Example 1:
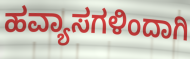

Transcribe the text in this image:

ಹವ್ಯಾಸಗಳಿಂದಾಗಿ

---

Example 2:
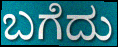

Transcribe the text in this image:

ಬಗೆದು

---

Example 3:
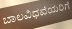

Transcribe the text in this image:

ಬಾಲವಿಧವೆಯರಿಗೆ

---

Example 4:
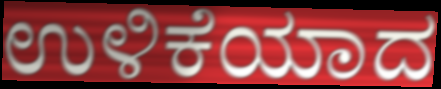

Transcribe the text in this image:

ಉಳಿಕೆಯಾದ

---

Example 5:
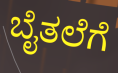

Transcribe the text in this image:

ಬೈತಲೆಗೆ